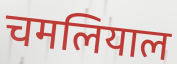
चमलियाल